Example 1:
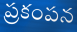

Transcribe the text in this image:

ప్రకంపన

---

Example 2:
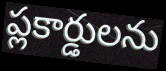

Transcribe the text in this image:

ప్లకార్డులను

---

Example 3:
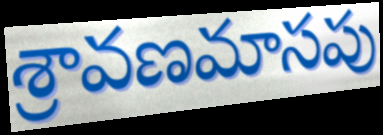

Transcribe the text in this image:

శ్రావణమాసపు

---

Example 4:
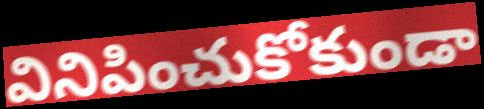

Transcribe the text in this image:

వినిపించుకోకుండా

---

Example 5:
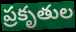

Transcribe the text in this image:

ప్రకృతుల